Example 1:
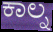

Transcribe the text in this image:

ಕಾಲ್ನ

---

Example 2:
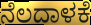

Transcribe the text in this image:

ನೆಲದಾಳಕೆ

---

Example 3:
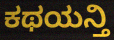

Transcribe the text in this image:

ಕಥಯನ್ತಿ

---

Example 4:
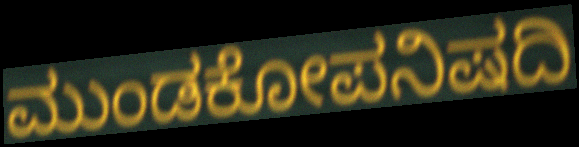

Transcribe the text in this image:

ಮುಂಡಕೋಪನಿಷದಿ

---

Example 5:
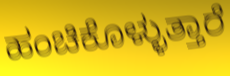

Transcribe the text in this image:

ಹಂಚಿಕೊಳ್ಳುತ್ತಾರೆ